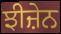
ਝੀਜ਼ੇਨ